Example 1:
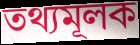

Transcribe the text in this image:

তথ্যমূলক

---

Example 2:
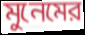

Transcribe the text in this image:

মুনেমের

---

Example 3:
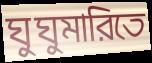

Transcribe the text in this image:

ঘুঘুমারিতে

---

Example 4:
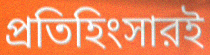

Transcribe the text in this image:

প্রতিহিংসারই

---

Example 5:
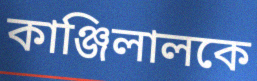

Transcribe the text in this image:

কাঞ্জিলালকে